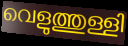
വെളുത്തുള്ളി